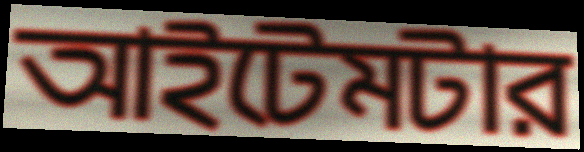
আইটেমটার